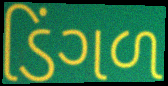
ડિંગળ